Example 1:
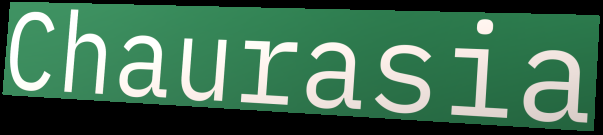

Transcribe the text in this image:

Chaurasia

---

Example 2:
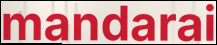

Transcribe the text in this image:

mandarai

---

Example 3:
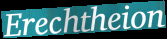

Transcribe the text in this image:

Erechtheion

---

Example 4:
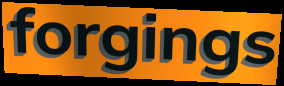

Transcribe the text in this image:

forgings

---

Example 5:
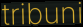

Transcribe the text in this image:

tribuni